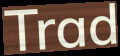
Trad